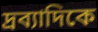
দ্রব্যাদিকে